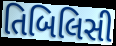
તિબિલિસી